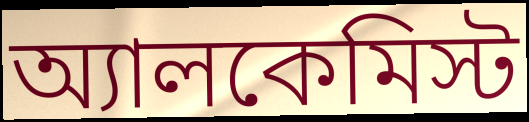
অ্যালকেমিস্ট